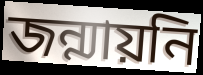
জন্মায়নি